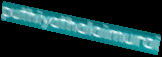
puthiyathalaimurai